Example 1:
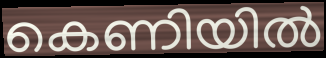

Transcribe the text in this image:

കെണിയിൽ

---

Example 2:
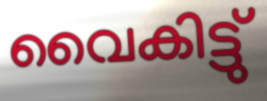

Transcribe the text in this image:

വൈകിട്ടു്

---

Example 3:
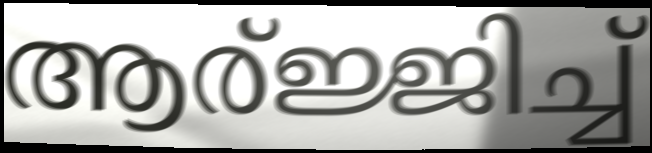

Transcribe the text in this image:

ആര്ജ്ജിച്ച്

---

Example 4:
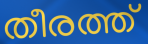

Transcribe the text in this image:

തീരത്ത്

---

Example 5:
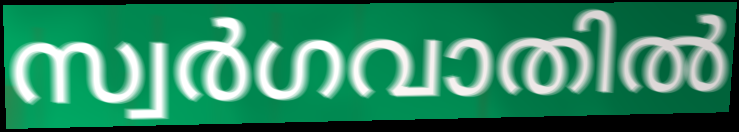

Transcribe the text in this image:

സ്വർഗവാതിൽ